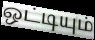
ஒட்டியும்